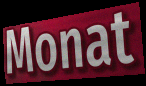
Monat